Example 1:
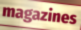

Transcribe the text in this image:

magazines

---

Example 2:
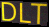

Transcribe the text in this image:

DLT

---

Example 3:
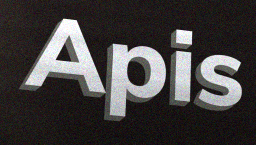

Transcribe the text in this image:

Apis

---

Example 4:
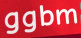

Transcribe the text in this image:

ggbm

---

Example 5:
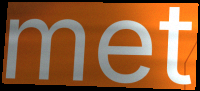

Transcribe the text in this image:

met